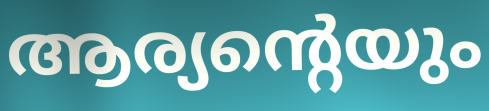
ആര്യന്റെയും